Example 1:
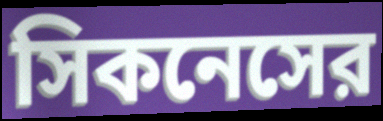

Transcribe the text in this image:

সিকনেসের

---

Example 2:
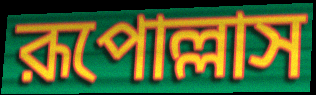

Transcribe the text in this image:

রূপোল্লাস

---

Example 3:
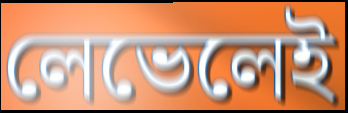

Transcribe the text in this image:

লেভেলেই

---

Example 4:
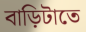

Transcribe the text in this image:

বাড়িটাতে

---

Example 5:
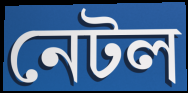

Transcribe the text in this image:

নেটল